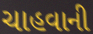
ચાહવાની